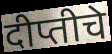
दीप्तीचे